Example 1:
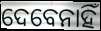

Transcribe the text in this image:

ଦେବେନାହିଁ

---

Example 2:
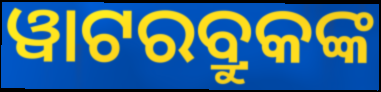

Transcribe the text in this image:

ୱାଟରବ୍ରୁକଙ୍କ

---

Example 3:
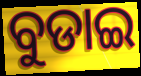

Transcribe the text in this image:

ବୁଡାଇ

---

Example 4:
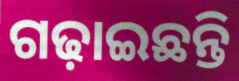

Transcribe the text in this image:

ଗଢ଼ାଇଛନ୍ତି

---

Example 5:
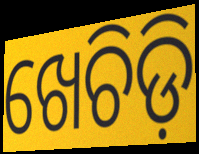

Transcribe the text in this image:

ଖେଚିଡ଼ି